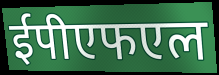
ईपीएफएल